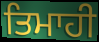
ਤਿਮਾਹੀ